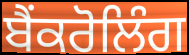
ਬੈਂਕਰੋਲਿੰਗ